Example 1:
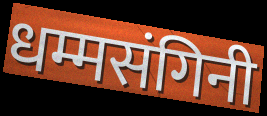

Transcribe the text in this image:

धम्मसंगिनी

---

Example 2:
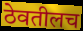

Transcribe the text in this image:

ठेवतीलच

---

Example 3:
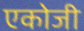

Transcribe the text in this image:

एकोजी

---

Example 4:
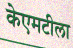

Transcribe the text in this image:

केएमटीला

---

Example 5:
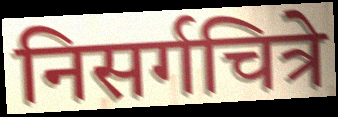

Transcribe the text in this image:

निसर्गचित्रे